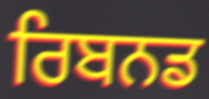
ਰਿਬਨਡ